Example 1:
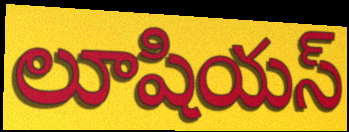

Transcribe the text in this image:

లూషియస్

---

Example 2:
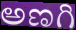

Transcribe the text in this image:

అణగి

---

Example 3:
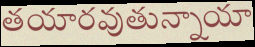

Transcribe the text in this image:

తయారవుతున్నాయా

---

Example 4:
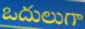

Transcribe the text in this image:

ఒదులుగా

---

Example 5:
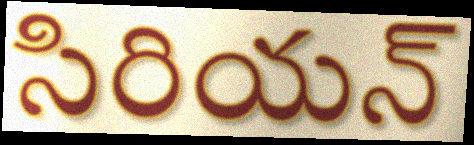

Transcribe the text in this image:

సిరియన్